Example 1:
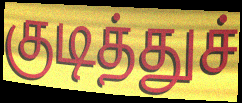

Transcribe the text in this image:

குடித்துச்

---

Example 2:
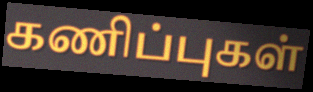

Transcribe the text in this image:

கணிப்புகள்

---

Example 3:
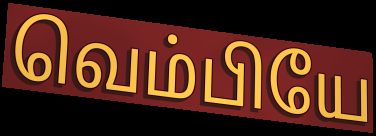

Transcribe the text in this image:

வெம்பியே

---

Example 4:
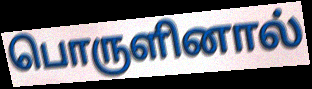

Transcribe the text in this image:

பொருளினால்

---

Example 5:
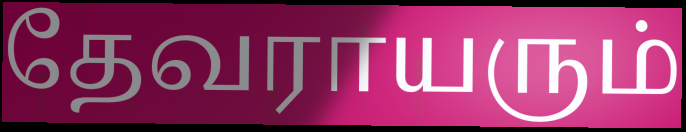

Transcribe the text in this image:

தேவராயரும்